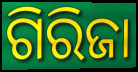
ଗିରିଜା